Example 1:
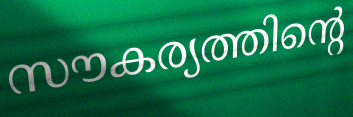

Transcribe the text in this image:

സൗകര്യത്തിന്റെ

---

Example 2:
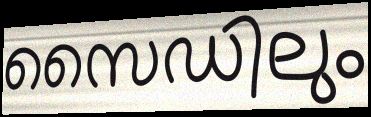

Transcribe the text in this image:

സൈഡിലും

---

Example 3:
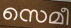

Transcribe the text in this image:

സെമീ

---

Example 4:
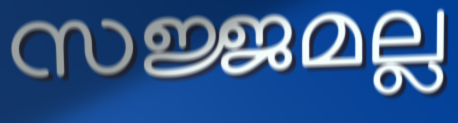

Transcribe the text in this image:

സജ്ജമല്ല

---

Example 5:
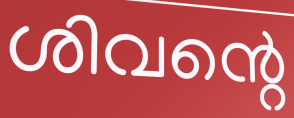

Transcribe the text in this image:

ശിവന്റെ